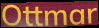
Ottmar